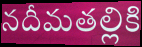
నదీమతల్లికి